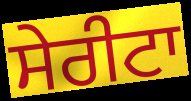
ਸੇਰੀਟਾ